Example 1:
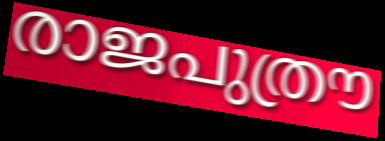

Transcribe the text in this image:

രാജപുത്രൗ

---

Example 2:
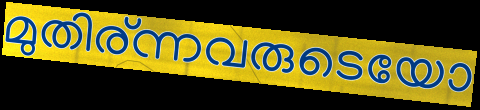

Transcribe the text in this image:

മുതിര്ന്നവരുടെയോ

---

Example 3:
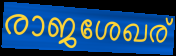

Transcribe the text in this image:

രാജശേഖര്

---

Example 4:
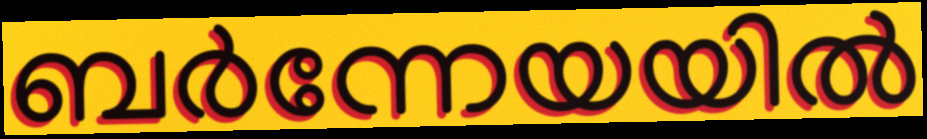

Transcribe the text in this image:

ബർന്നേയയിൽ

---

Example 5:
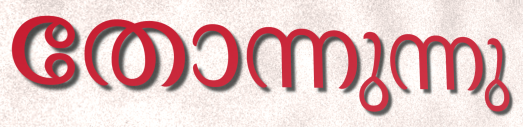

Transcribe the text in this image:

തോന്നുന്നു